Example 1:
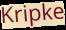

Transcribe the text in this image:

Kripke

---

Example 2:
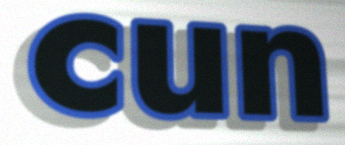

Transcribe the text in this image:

cun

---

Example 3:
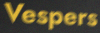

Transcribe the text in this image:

Vespers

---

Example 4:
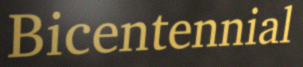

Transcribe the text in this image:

Bicentennial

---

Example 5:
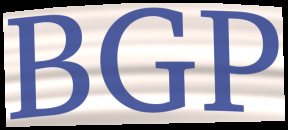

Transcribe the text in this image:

BGP